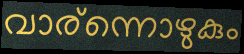
വാര്ന്നൊഴുകും